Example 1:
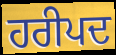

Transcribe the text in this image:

ਹਰੀਪਦ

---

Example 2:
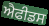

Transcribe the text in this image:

ਐਫੀਡਸ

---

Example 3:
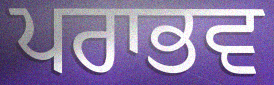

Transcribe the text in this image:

ਪਰਾਭਵ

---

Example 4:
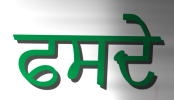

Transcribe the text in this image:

ਫਸਦੇ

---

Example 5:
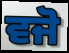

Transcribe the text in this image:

ਵਜੋ